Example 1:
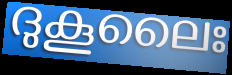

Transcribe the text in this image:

ദുകൂലൈഃ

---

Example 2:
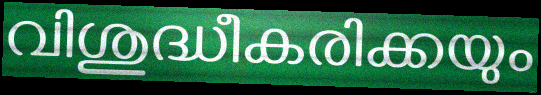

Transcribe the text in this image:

വിശുദ്ധീകരിക്കയും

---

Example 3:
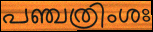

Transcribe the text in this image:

പഞ്ചത്രിംശഃ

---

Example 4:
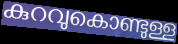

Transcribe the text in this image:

കുറവുകൊണ്ടുള്ള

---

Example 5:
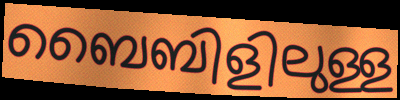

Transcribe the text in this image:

ബൈബിളിലുള്ള